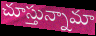
చూస్తున్నామా